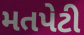
મતપેટી